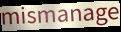
mismanage